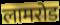
लामरोड